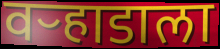
वऱ्हाडाला